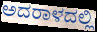
ಅದರಾಳದಲ್ಲಿ